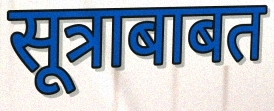
सूत्राबाबत